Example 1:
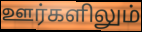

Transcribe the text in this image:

ஊர்களிலும்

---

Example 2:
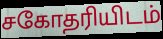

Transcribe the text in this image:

சகோதரியிடம்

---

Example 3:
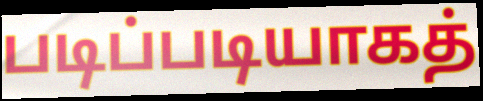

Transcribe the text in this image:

படிப்படியாகத்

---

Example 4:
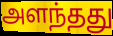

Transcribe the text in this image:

அளந்தது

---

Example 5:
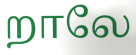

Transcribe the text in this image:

றாலே